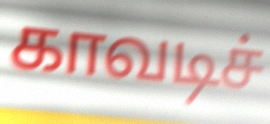
காவடிச்